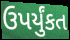
ઉપર્યુંકત